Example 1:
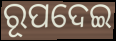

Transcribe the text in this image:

ରୂପଦେଇ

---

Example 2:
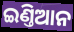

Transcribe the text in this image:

ଇଣ୍ତିଆନ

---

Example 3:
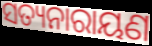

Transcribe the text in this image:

ସତ୍ୟନାରାୟଣ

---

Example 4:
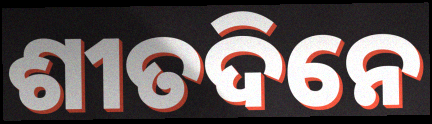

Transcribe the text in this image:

ଶୀତଦିନେ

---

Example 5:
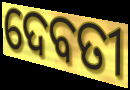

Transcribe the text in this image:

ଦେବତୀ